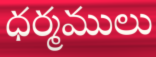
ధర్మములు